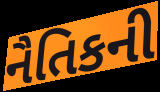
નૈતિકની